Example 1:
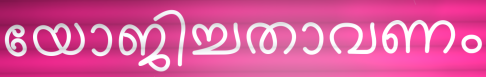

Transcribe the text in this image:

യോജിച്ചതാവണം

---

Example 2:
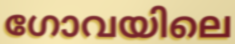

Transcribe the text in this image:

ഗോവയിലെ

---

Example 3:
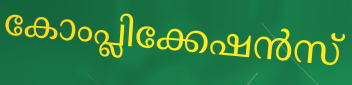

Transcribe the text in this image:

കോംപ്ലിക്കേഷൻസ്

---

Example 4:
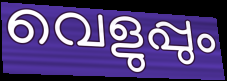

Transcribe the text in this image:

വെളുപ്പും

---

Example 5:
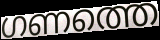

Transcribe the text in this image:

ഗണത്തെ